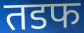
तडफ